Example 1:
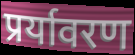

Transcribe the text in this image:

प्रर्यावरण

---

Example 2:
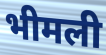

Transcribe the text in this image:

भीमली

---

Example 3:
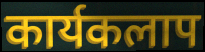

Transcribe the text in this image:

कार्यकलाप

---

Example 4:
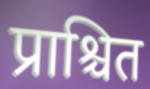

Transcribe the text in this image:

प्राश्चित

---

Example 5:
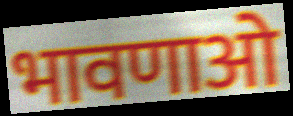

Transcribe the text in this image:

भावणाओ